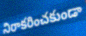
నిరాకరించకుండా